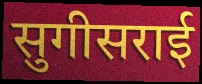
सुगीसराई